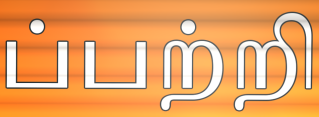
ப்பற்றி